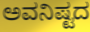
ಅವನಿಷ್ಟದ